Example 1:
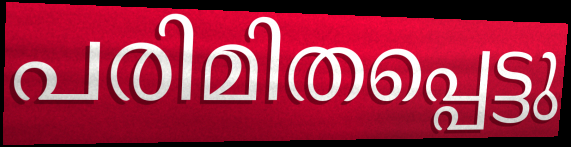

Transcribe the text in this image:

പരിമിതപ്പെട്ടു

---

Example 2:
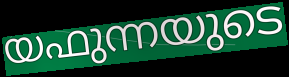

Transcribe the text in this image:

യഫുന്നയുടെ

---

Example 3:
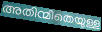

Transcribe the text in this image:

അതിന്മീതെയുള്ള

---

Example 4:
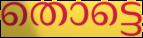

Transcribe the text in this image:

തൊട്ടെ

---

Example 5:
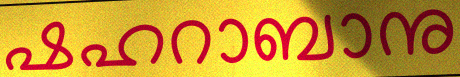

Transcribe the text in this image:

ഷഹറാബാനു